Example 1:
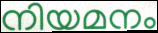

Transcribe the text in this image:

നിയമനം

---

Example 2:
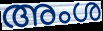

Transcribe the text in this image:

അംശ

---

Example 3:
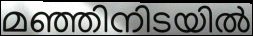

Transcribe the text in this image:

മഞ്ഞിനിടയിൽ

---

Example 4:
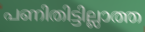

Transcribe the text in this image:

പണിതിട്ടില്ലാത്ത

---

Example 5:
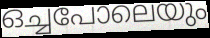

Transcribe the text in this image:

ഒച്ചപോലെയും